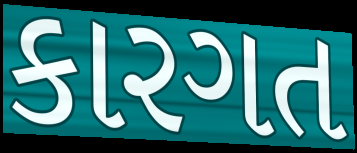
કારગત